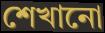
শেখানো